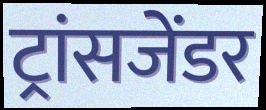
ट्रांसजेंडर